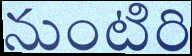
నుంటిరి